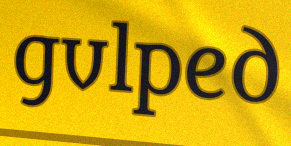
gulped